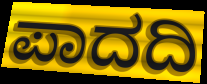
ಪಾದದಿ